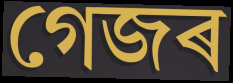
গেজৰ